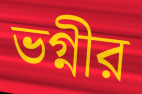
ভগ্নীর